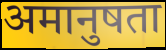
अमानुषता